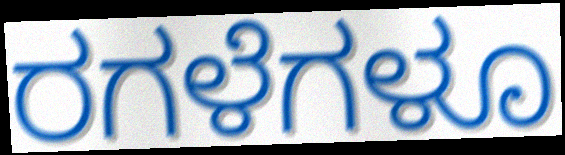
ರಗಳೆಗಳೂ